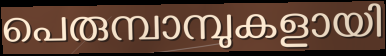
പെരുമ്പാമ്പുകളായി